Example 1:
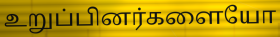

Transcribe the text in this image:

உறுப்பினர்களையோ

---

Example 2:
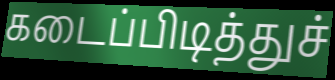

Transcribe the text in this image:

கடைப்பிடித்துச்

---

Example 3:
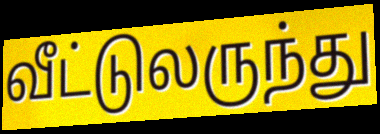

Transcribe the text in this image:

வீட்டுலருந்து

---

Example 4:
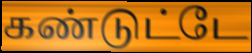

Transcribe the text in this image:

கண்டுட்டே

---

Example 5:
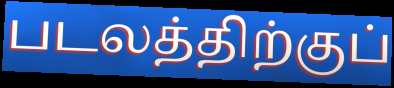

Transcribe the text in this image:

படலத்திற்குப்